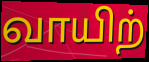
வாயிற்